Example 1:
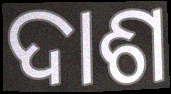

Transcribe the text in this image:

ଦାଶ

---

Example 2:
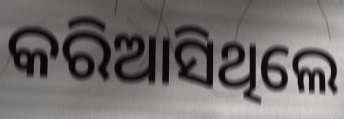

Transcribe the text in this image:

କରିଆସିଥିଲେ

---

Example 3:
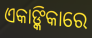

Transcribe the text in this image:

ଏକାଙ୍କିକାରେ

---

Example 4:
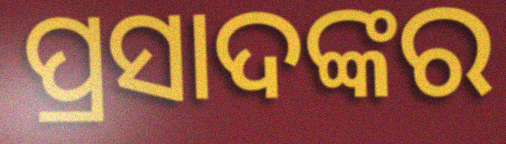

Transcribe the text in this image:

ପ୍ରସାଦଙ୍କର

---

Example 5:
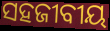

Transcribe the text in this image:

ସହଜୀବୀୟ